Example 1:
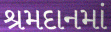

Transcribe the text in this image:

શ્રમદાનમાં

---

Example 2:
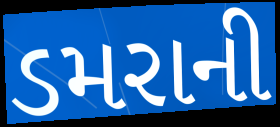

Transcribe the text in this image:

ડમરાની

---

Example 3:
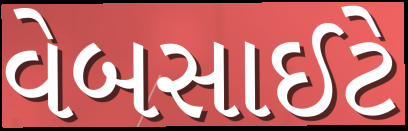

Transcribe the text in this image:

વેબસાઈટે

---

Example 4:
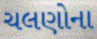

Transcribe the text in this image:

ચલણોના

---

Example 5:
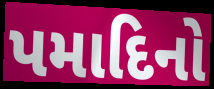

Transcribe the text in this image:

પમાદિનો